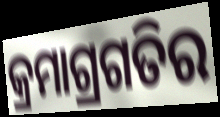
କ୍ରମାଗ୍ରଗତିର